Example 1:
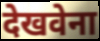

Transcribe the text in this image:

देखवेना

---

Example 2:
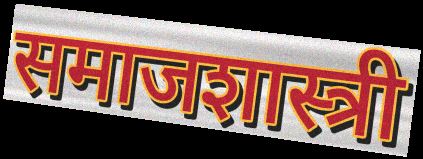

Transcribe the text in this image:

समाजशास्त्री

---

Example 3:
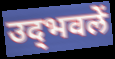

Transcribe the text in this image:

उद्‍भवलें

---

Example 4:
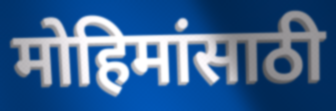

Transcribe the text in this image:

मोहिमांसाठी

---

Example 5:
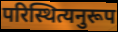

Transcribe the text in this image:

परिस्थित्यनुरूप